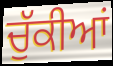
ਚੁੱਕੀਆਂ